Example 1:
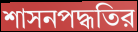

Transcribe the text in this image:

শাসনপদ্ধতির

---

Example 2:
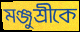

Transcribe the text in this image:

মঞ্জুশ্রীকে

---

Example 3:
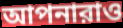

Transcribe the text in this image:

আপনারাও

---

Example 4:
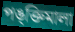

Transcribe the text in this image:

পঙ্‌ক্তিমালা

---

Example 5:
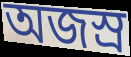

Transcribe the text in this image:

অজস্র